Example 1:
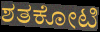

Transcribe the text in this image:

ಶತಕೋಟಿ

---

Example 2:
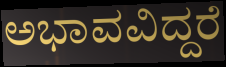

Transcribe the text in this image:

ಅಭಾವವಿದ್ದರೆ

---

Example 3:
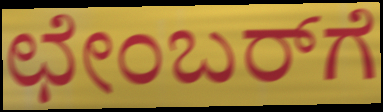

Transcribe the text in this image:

ಛೇಂಬರ್‌ಗೆ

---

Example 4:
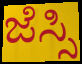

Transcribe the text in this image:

ಜೆಸ್ಸಿ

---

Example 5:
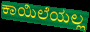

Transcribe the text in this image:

ಕಾಯಿಲೆಯಲ್ಲ